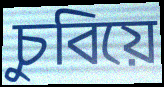
চুবিয়ে